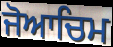
ਜੋਆਚਿਮ